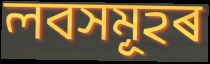
লবসমূহৰ